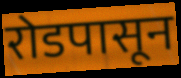
रोडपासून